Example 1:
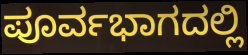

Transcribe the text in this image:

ಪೂರ್ವಭಾಗದಲ್ಲಿ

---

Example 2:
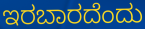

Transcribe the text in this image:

ಇರಬಾರದೆಂದು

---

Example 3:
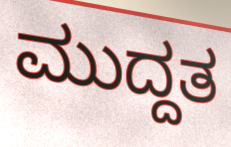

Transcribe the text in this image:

ಮುದ್ದತ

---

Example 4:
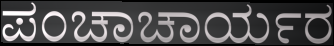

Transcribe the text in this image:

ಪಂಚಾಚಾರ್ಯರ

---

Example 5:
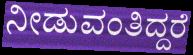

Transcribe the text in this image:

ನೀಡುವಂತಿದ್ದರೆ